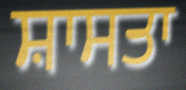
ਸ਼ਾਸਤਾ